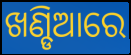
ଖଣ୍ଡିଆରେ